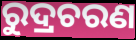
ରୁଦ୍ରଚରଣ